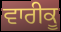
ਵਾਰੀਕੂ